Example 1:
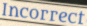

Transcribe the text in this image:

Incorrect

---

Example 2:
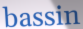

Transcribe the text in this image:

bassin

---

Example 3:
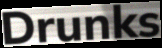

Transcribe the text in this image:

Drunks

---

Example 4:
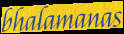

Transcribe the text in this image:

bhalamanas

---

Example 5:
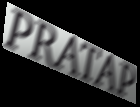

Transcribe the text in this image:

PRATAP